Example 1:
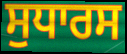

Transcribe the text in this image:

ਸੁਧਾਰਸ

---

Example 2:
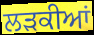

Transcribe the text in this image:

ਲੜਕੀਆਂ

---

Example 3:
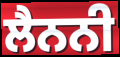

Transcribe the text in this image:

ਲੈਨਨੀ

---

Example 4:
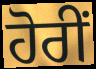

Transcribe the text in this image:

ਹੋਰੀਂ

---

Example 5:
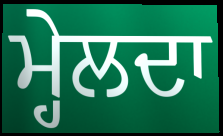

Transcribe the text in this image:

ਮ੍ਹੇਲਦਾ